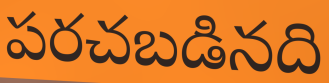
పరచబడినది